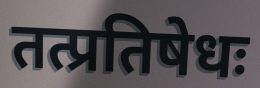
तत्प्रतिषेधः